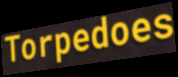
Torpedoes